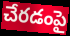
చేరడంపై